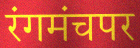
रंगमंचपर